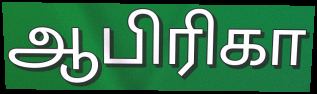
ஆபிரிகா